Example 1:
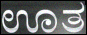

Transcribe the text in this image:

ಊತ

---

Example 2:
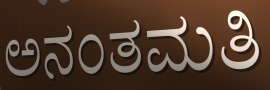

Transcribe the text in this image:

ಅನಂತಮತಿ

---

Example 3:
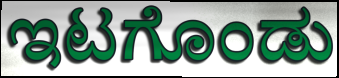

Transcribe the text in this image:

ಇಟಗೊಂಡು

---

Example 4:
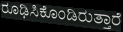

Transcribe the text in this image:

ರೂಢಿಸಿಕೊಂಡಿರುತ್ತಾರೆ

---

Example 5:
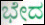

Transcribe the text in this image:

ಭೇದ